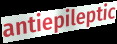
antiepileptic